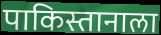
पाकिस्तानाला